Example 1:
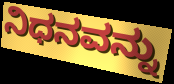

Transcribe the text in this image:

ನಿಧನವನ್ನು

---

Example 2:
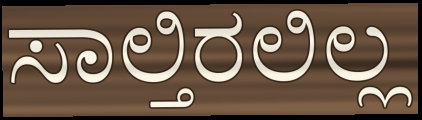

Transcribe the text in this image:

ಸಾಲ್ತಿರಲಿಲ್ಲ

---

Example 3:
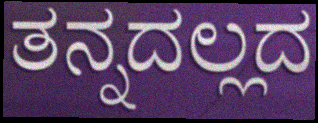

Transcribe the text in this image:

ತನ್ನದಲ್ಲದ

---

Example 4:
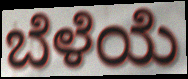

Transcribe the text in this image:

ಬೆಳೆಯೆ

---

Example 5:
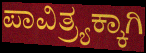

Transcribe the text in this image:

ಪಾವಿತ್ರ್ಯಕ್ಕಾಗಿ